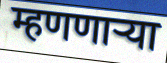
म्हणणाऱ्या